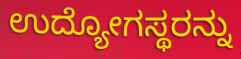
ಉದ್ಯೋಗಸ್ಥರನ್ನು